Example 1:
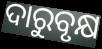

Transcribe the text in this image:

ଦାରୁବୃକ୍ଷ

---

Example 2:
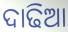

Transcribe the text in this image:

ଦାଢିଆ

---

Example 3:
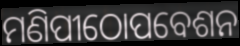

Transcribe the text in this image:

ମଣିପୀଠୋପବେଶନ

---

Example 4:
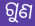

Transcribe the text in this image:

ଗୁଣ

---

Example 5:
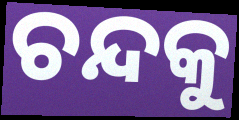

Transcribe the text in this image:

ଚନ୍ଦକୁ